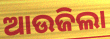
ଆଉଜିଲା